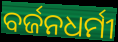
ବର୍ଜନଧର୍ମୀ